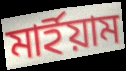
মার্ইয়াম